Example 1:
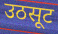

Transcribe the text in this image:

उठसूट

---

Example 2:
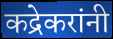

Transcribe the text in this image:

कद्रेकरांनी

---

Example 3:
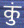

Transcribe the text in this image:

कुं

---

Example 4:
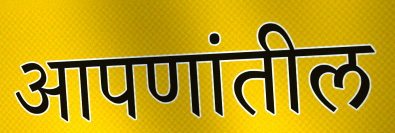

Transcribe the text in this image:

आपणांतील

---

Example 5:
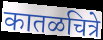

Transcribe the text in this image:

कातळचित्रे